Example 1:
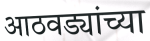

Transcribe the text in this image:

आठवड्यांच्या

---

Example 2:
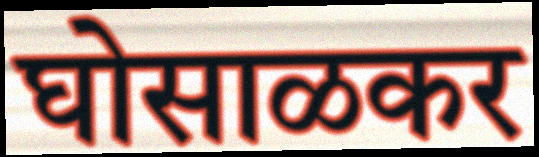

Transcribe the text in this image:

घोसाळकर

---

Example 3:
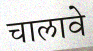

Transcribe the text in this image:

चालावे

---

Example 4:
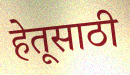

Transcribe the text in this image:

हेतूसाठी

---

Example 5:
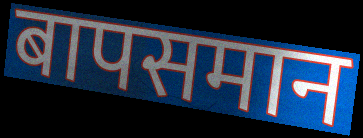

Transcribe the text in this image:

बापसमान